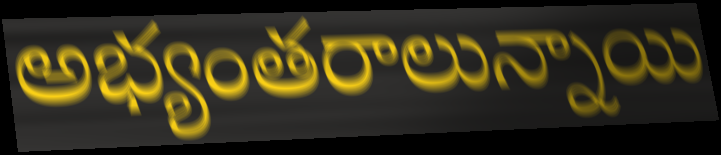
అభ్యంతరాలున్నాయి